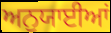
ਅਨੁਯਾਈਆਂ